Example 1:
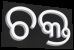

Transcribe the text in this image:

ଚକ୍ତ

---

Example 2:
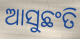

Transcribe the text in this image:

ଆସୁଛଂତି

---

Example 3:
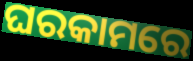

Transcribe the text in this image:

ଘରକାମରେ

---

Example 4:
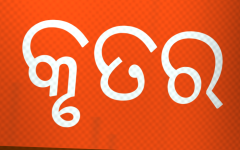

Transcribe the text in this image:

କୃତର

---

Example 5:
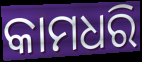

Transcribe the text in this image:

କାମଧରି